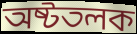
অষ্টতলক